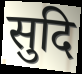
सुदि